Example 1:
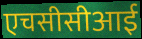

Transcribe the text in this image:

एचसीसीआई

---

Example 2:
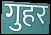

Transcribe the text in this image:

गुहर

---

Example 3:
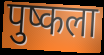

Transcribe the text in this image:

पुष्कला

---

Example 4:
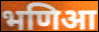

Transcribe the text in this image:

भणिआ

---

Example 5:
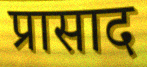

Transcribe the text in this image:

प्रासाद